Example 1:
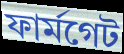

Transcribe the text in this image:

ফার্মগেট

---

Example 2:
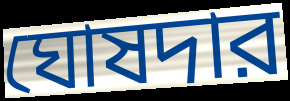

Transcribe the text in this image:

ঘোষদার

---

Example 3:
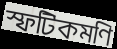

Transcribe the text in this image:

স্ফটিকমণি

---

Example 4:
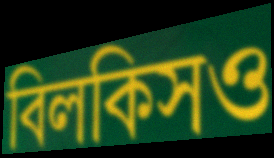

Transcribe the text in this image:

বিলকিসও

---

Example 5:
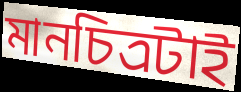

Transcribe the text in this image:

মানচিত্রটাই